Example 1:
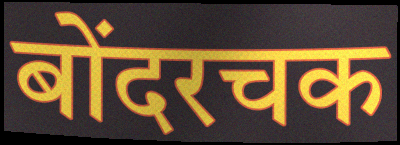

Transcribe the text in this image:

बोंदरचक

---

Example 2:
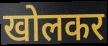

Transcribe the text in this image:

खोलकर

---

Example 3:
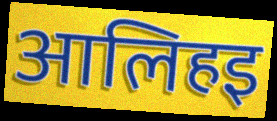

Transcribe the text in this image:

आलिहइ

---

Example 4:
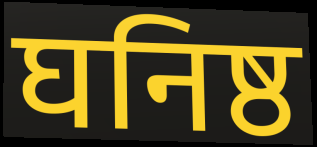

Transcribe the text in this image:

घनिष्ठ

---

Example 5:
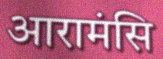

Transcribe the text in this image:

आरामंसि